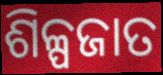
ଶିଳ୍ପଜାତ